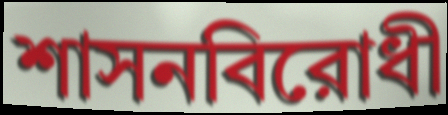
শাসনবিরোধী